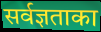
सर्वज्ञताका